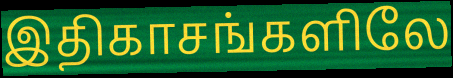
இதிகாசங்களிலே